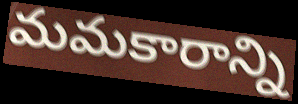
మమకారాన్ని